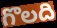
గొలది